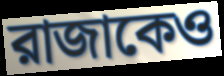
রাজাকেও